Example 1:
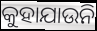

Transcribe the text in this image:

କୁହାଯାଉନି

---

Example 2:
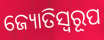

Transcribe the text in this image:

ଜ୍ୟୋତିସ୍ୱରୂପ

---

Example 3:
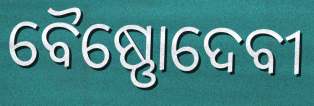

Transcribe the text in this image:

ବୈଷ୍ଣୋଦେବୀ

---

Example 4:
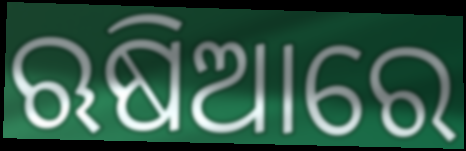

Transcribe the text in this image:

ଋଷିଆରେ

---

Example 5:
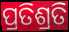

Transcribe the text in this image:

ପ୍ରତିଶ୍ରତି